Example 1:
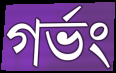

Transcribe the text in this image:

গর্ভং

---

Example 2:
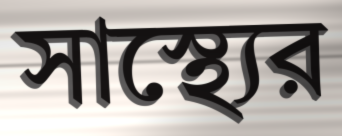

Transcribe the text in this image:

সাস্থ্যের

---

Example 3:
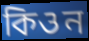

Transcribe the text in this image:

কিওন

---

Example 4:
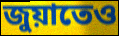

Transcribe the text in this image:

জুয়াতেও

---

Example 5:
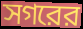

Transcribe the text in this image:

সগরের